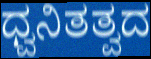
ಧ್ವನಿತತ್ವದ